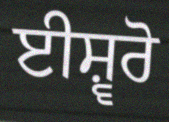
ਈਸ਼੍ਵਰੋ